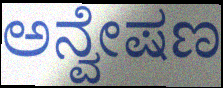
ಅನ್ವೇಷಣ